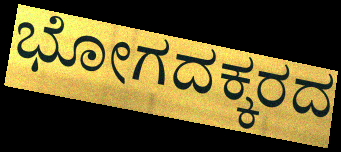
ಭೋಗದಕ್ಕರದ